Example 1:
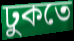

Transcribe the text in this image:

ঢুকতে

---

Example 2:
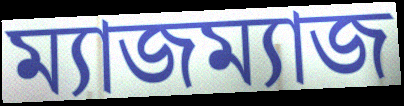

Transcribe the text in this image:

ম্যাজম্যাজ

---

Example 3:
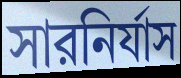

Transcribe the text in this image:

সারনির্যাস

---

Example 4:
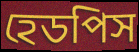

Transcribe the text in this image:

হেডপিস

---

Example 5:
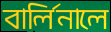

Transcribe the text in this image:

বার্লিনালে